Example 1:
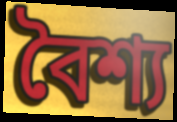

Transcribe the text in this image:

বৈশ্য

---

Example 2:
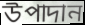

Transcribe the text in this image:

উপাদান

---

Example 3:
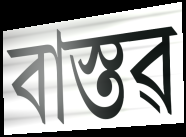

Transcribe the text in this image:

বাস্তৱ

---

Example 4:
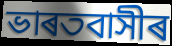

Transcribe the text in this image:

ভাৰতবাসীৰ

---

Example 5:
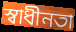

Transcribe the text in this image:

স্বাধীনতা